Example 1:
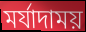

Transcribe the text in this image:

মর্যাদাময়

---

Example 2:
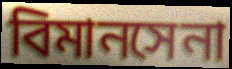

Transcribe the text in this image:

বিমানসেনা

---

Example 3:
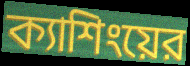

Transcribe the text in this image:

ক্যাশিংয়ের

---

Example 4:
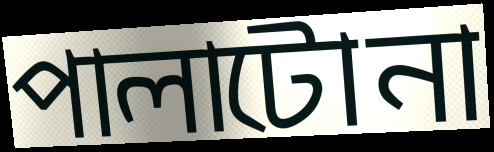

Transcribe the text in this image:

পালাটোনা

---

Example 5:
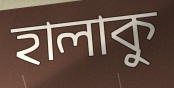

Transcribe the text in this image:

হালাকু